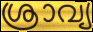
ശ്രാവ്യ